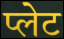
प्‍लेट